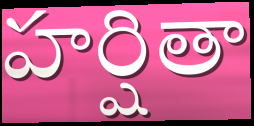
హర్షితా